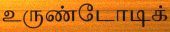
உருண்டோடிக்